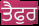
ਤੈਫੁਰ